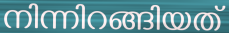
നിന്നിറങ്ങിയത്